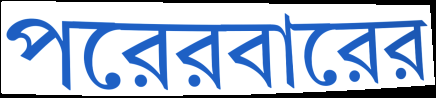
পরেরবারের